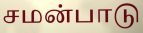
சமன்பாடு